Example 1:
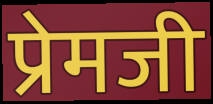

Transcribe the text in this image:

प्रेमजी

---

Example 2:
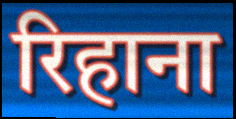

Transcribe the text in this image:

रिहाना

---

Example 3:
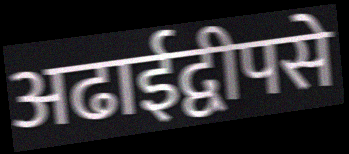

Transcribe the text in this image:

अढाईद्वीपसे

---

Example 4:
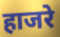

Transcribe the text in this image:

हाजरे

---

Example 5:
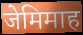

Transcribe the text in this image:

जेमिमाह